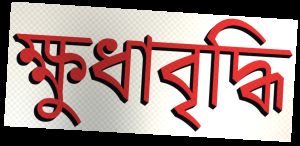
ক্ষুধাবৃদ্ধি